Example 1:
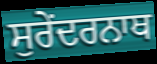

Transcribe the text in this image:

ਸੁਰੇਂਦਰਨਾਥ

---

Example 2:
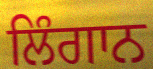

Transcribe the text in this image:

ਲਿੰਗਾਨ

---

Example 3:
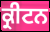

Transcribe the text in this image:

ਕ੍ਰੀਟਨ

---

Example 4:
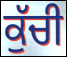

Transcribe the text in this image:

ਕੁੱਚੀ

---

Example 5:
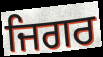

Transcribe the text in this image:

ਜਿਗਰ